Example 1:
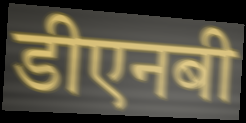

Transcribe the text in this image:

डीएनबी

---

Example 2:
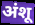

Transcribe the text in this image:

अंशू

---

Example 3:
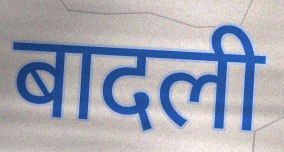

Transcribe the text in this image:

बादली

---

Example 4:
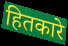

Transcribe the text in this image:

हितकारे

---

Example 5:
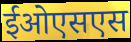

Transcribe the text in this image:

ईओएसएस